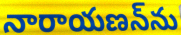
నారాయణన్‌ను